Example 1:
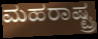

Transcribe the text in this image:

ಮಹರಾಷ್ಟ್ರ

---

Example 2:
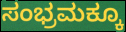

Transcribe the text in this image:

ಸಂಭ್ರಮಕ್ಕೂ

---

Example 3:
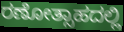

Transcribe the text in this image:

ರಣೋತ್ಸಾಹದಲ್ಲಿ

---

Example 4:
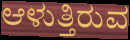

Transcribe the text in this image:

ಆಳುತ್ತಿರುವ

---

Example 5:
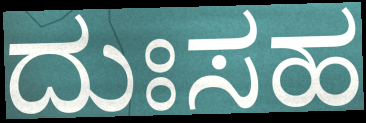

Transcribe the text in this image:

ದುಃಸಹ